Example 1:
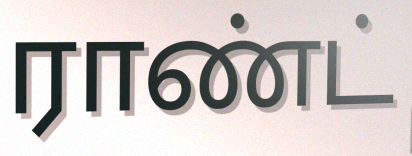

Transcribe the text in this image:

ராண்ட்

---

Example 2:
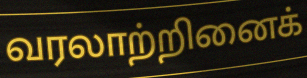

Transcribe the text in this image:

வரலாற்றினைக்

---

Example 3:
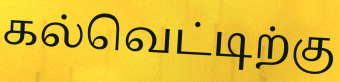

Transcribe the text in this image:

கல்வெட்டிற்கு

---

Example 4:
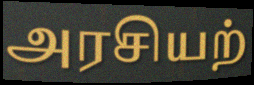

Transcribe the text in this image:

அரசியற்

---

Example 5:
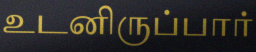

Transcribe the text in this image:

உடனிருப்பார்